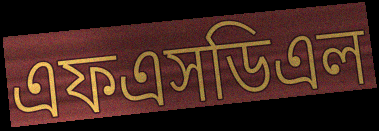
এফএসডিএল